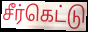
சீர்கெட்டு